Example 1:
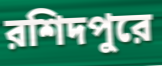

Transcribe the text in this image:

রশিদপুরে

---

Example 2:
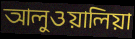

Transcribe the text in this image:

আলুওয়ালিয়া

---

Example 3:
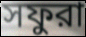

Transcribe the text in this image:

সফুরা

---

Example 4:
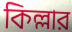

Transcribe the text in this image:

কিল্লার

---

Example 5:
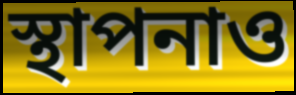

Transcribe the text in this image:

স্থাপনাও